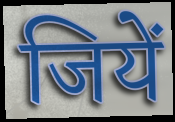
जियें